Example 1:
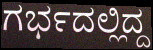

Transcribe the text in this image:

ಗರ್ಭದಲ್ಲಿದ್ದ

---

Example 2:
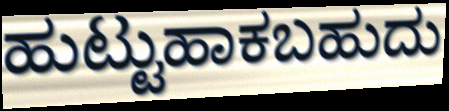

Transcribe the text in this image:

ಹುಟ್ಟುಹಾಕಬಹುದು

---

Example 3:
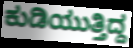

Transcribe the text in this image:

ಕುಡಿಯುತ್ತಿದ್ದ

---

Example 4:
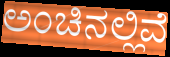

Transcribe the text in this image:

ಅಂಚಿನಲ್ಲಿವೆ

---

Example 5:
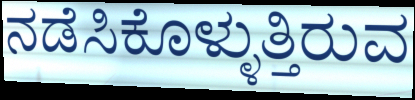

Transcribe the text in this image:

ನಡೆಸಿಕೊಳ್ಳುತ್ತಿರುವ